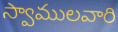
స్వాములవారి